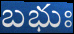
బభుః